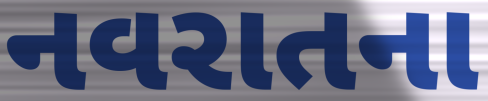
નવરાતના